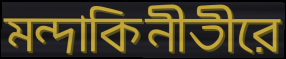
মন্দাকিনীতীরে